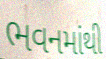
ભવનમાંથી